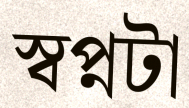
স্বপ্নটা